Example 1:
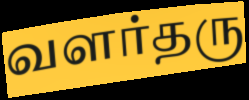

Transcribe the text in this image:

வளர்தரு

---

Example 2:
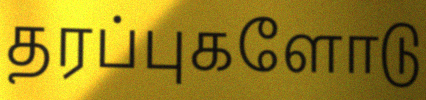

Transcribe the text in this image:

தரப்புகளோடு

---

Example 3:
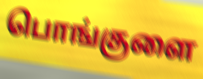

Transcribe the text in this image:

பொங்குளை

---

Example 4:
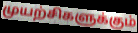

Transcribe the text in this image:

முயற்சிகளுக்கும்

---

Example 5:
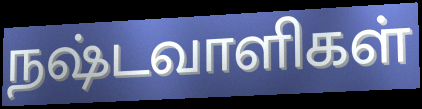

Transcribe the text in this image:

நஷ்டவாளிகள்